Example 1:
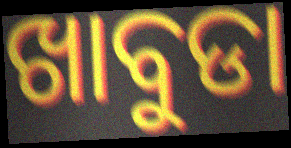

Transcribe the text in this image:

ଖାବୁଡା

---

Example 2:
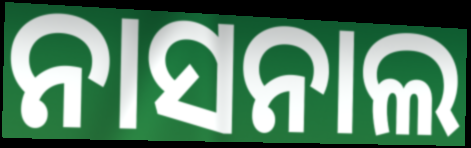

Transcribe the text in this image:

ନାସନାଲ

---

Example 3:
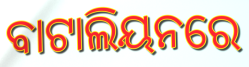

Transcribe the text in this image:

ବାଟାଲିୟନରେ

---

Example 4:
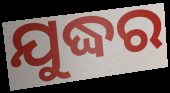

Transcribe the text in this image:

ଯୁଦ୍ଧର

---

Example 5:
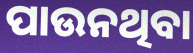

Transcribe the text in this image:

ପାଉନଥିବା